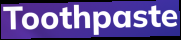
Toothpaste